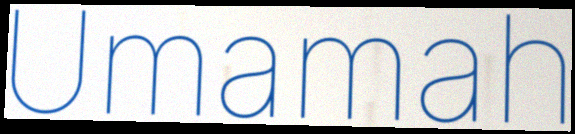
Umamah